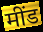
मींड